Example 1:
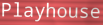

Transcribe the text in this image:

Playhouse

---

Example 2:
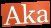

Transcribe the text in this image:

Aka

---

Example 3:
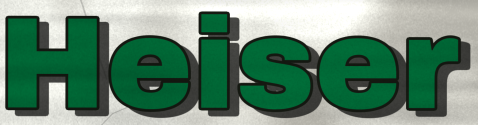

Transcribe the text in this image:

Heiser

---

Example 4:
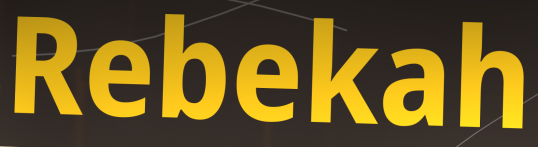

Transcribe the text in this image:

Rebekah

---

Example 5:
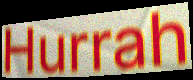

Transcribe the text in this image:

Hurrah